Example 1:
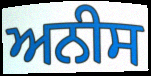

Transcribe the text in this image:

ਅਨੀਸ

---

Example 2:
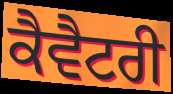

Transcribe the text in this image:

ਕੈਵੈਟਰੀ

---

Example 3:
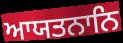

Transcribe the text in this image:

ਆਯਤਨਾਨਿ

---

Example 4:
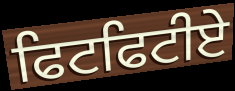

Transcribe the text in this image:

ਫਿਟਫਿਟੀਏ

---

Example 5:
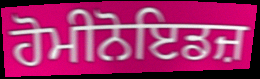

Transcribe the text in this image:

ਹੋਮੀਨੋਇਡਜ਼